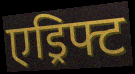
एड्रिफ्ट